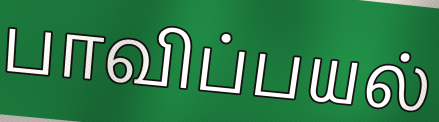
பாவிப்பயல்